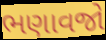
ભણાવજો